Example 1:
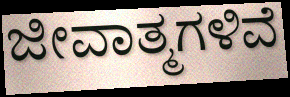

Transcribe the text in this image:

ಜೀವಾತ್ಮಗಳಿವೆ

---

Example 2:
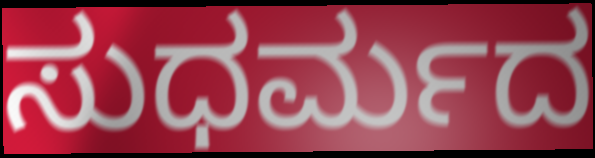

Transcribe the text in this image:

ಸುಧರ್ಮದ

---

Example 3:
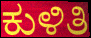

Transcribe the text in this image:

ಕುಳಿತಿ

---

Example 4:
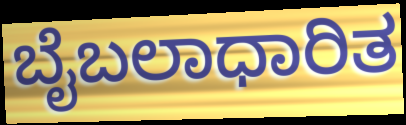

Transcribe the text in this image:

ಬೈಬಲಾಧಾರಿತ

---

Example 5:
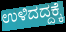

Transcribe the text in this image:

ಉಳಿದದ್ದಕ್ಕೆ